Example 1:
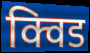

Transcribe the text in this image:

क्विड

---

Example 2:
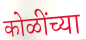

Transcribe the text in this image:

कोळींच्या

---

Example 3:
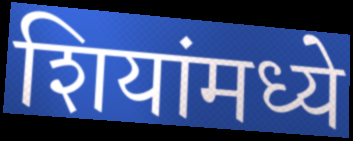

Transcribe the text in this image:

शियांमध्ये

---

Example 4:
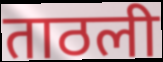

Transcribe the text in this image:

ताठली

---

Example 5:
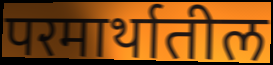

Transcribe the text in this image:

परमार्थातील